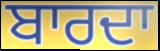
ਬਾਰਦਾ